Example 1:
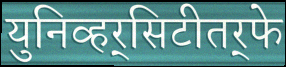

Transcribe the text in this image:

युनिव्हर्सिटीतर्फे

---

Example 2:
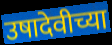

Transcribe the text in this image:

उषादेवीच्या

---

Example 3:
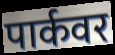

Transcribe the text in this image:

पार्कवर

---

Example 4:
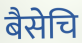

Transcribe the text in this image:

बैसेचि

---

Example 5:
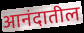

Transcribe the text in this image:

आनंदातील